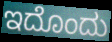
ಇದೊಂದು